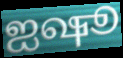
ஐஷூ